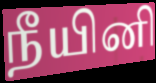
நீயினி